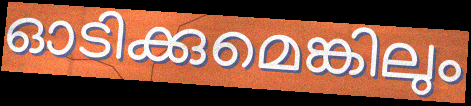
ഓടിക്കുമെങ്കിലും